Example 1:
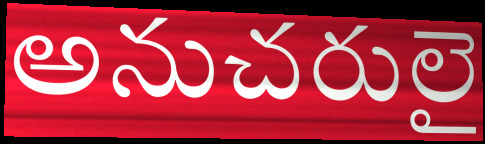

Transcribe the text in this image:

అనుచరులై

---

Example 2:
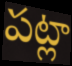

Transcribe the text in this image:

పట్లా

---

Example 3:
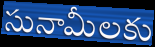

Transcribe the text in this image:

సునామీలకు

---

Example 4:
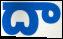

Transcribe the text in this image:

దా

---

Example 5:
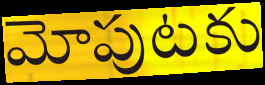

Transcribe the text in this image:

మోపుటకు